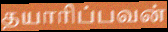
தயாரிப்பவன்